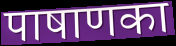
पाषाणका